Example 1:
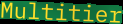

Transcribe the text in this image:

Multitier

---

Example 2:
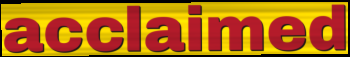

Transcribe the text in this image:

acclaimed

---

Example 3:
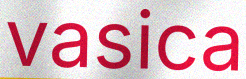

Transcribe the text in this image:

vasica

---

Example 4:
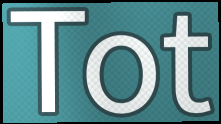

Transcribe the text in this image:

Tot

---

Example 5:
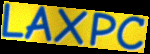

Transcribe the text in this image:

LAXPC